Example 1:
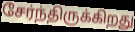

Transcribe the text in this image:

சேர்ந்திருக்கிறது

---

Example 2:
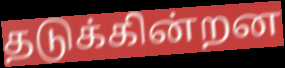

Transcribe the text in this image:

தடுக்கின்றன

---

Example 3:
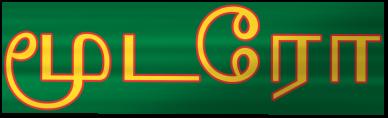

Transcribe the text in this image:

மூடரோ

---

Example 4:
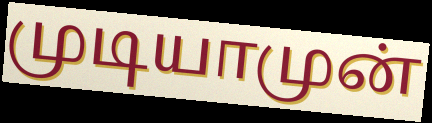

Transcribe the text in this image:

முடியாமுன்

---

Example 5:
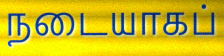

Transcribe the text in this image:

நடையாகப்